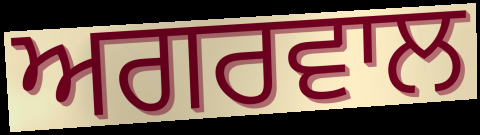
ਅਗਰਵਾਲ